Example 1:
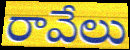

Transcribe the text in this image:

రావేలు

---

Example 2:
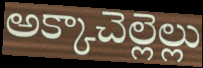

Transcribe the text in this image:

అక్కాచెల్లెల్లు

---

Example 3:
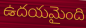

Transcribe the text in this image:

ఉదయమైంది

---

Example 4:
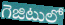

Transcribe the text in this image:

గెజిటులో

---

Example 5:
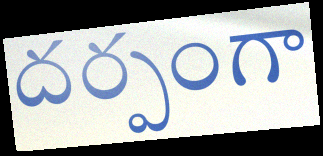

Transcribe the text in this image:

దర్పంగా